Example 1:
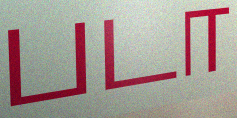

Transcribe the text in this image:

படா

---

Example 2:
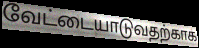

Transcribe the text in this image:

வேட்டையாடுவதற்காக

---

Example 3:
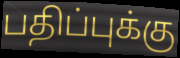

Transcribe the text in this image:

பதிப்புக்கு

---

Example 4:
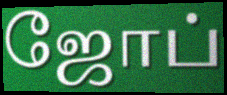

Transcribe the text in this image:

ஜோப்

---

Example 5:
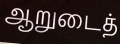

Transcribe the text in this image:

ஆறுடைத்